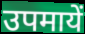
उपमायें